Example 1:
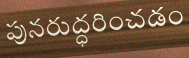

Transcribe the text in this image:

పునరుద్ధరించడం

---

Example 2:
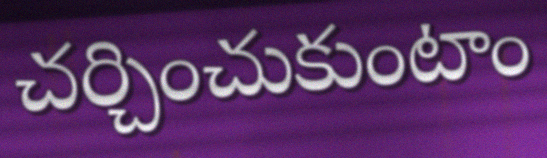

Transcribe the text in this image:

చర్చించుకుంటాం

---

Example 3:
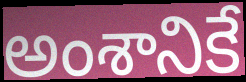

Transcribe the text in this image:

అంశానికే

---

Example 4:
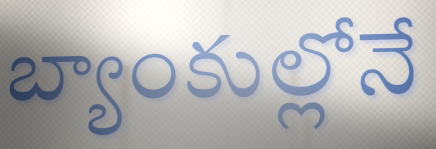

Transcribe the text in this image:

బ్యాంకుల్లోనే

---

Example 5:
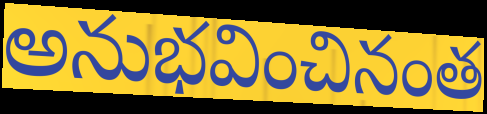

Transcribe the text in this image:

అనుభవించినంత